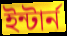
ইন্টার্ন